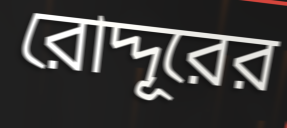
রোদ্দূরের